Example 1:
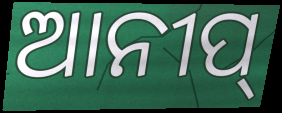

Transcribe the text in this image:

ଆନୀପ୍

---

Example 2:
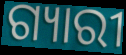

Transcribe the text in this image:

ଗ୍ୟାରୀ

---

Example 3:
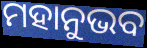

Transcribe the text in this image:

ମହାନୁଭବ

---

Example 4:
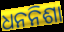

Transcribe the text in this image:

ଧନନିଶା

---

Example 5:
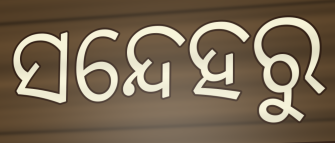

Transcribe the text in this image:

ସନ୍ଦେହରୁ